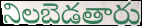
నిలబెడతారు